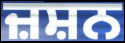
ਜ਼ਸ਼ਨ